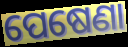
ପେଷେଣା